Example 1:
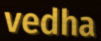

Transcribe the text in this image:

vedha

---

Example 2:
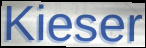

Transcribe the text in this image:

Kieser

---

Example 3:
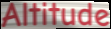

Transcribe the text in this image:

Altitude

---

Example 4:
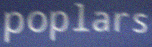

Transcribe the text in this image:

poplars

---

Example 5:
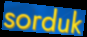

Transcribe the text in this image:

sorduk